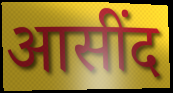
आसींद